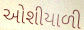
ઓશીયાળી